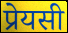
प्रेयसी